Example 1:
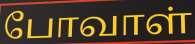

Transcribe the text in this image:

போவாள்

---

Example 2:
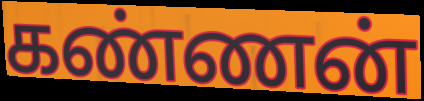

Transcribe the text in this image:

கண்ணன்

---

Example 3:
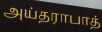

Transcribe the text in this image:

அய்தராபாத்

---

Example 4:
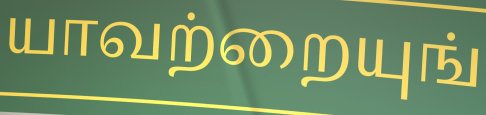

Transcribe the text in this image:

யாவற்றையுங்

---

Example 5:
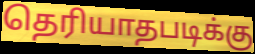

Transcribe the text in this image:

தெரியாதபடிக்கு